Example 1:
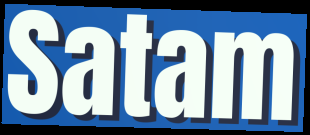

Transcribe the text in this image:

Satam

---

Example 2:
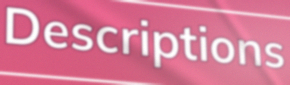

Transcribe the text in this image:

Descriptions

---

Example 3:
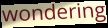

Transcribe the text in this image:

wondering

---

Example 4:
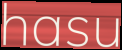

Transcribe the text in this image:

hasu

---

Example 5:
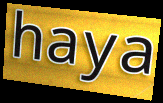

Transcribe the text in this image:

haya